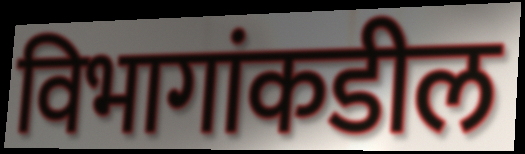
विभागांकडील